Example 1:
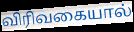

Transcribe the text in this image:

விரிவகையால்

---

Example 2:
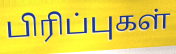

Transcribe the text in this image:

பிரிப்புகள்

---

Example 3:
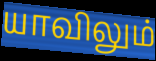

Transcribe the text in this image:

யாவிலும்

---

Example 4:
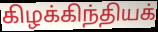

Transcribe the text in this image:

கிழக்கிந்தியக்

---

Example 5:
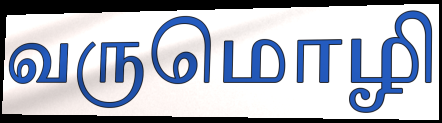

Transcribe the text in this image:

வருமொழி